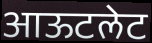
आऊटलेट